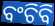
ବଂଚିବି